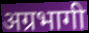
अग्रभागी